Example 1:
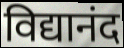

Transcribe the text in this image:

विद्यानंद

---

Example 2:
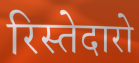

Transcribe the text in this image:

रिस्तेदारो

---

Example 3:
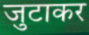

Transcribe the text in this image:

जुटाकर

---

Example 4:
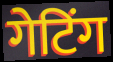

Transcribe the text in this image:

गेटिंग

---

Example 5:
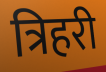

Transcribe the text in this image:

त्रिहरी